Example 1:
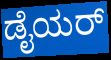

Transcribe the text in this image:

ಡೈಯರ್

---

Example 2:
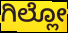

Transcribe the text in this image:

ಗಿಲ್ಲೋ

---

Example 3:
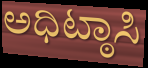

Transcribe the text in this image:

ಅಧಿಟ್ಠಾಸಿ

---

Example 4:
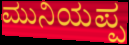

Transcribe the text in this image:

ಮುನಿಯಪ್ಪ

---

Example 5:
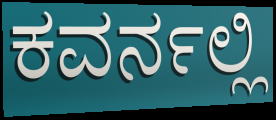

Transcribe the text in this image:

ಕವರ್ನಲ್ಲಿ